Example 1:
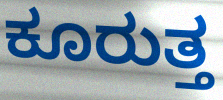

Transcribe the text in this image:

ಕೂರುತ್ತ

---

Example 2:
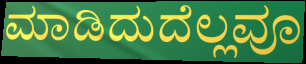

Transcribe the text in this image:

ಮಾಡಿದುದೆಲ್ಲವೂ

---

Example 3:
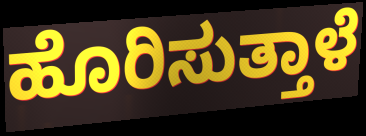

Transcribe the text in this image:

ಹೊರಿಸುತ್ತಾಳೆ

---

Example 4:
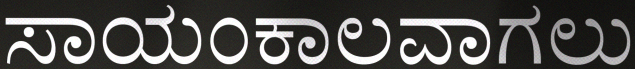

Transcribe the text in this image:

ಸಾಯಂಕಾಲವಾಗಲು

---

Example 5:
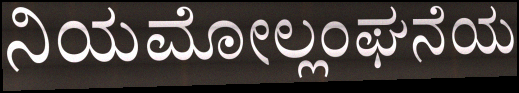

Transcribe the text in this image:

ನಿಯಮೋಲ್ಲಂಘನೆಯ